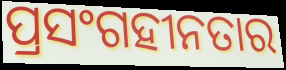
ପ୍ରସଂଗହୀନତାର